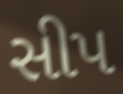
સીપ